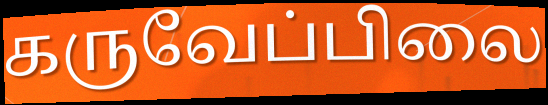
கருவேப்பிலை